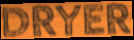
DRYER